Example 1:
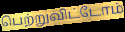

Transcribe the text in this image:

பெற்றுவிட்டோம்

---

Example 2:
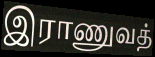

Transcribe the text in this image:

இராணுவத்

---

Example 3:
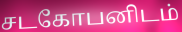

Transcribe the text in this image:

சடகோபனிடம்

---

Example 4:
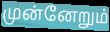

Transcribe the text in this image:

முன்னேறும்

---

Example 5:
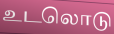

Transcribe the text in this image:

உடலொடு